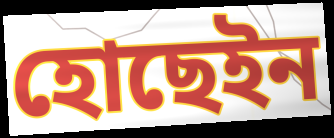
হোছেইন